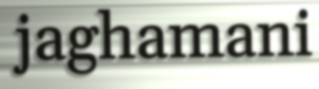
jaghamani